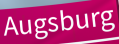
Augsburg